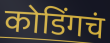
कोडिंगचं